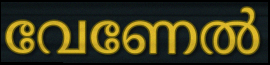
വേണേൽ